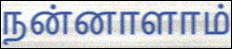
நன்னாளாம்